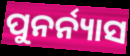
ପୁନର୍ନ୍ୟାସ